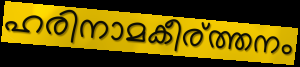
ഹരിനാമകീര്ത്തനം